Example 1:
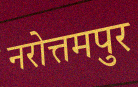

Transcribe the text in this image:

नरोत्तमपुर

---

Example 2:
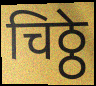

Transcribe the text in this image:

चिठ्ठे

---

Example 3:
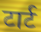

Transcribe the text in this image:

टार्ट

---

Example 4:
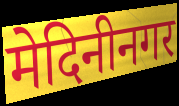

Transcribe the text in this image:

मेदिनीनगर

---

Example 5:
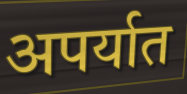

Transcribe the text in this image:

अपर्यात